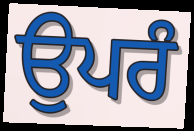
ਉਪਰੰ